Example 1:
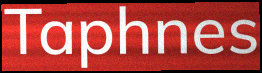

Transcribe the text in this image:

Taphnes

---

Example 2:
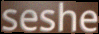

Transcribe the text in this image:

seshe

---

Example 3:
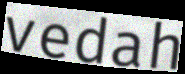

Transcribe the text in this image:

vedah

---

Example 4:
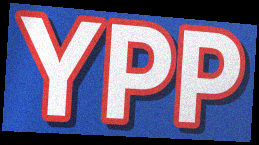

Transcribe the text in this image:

YPP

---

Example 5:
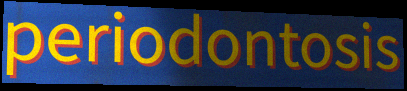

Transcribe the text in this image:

periodontosis